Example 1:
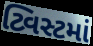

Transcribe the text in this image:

ટ્વિસ્ટમાં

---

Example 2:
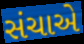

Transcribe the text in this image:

સંચાએ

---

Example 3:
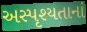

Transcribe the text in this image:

અસ્પૃશ્યતાનાં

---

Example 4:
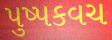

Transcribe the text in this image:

પુષ્પકવચ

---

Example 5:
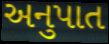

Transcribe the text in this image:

અનુપાત